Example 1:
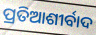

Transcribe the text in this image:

ପ୍ରତିଆଶୀର୍ବାଦ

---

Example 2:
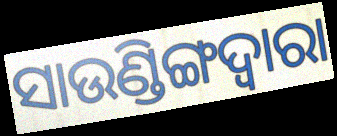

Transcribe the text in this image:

ସାଉଣ୍ଡିଙ୍ଗଦ୍ୱାରା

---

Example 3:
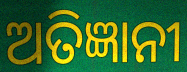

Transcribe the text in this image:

ଅତିଜ୍ଞାନୀ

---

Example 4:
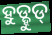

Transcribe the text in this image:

ହୁଡ୍ହୁଡ୍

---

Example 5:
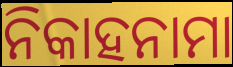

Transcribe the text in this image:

ନିକାହନାମା